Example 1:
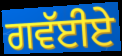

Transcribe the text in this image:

ਗਵੱਈਏ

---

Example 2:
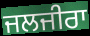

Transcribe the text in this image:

ਜਲਜੀਰਾ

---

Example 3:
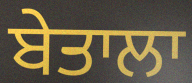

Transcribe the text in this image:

ਬੇਤਾਲਾ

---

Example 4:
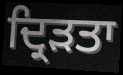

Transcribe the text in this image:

ਦ੍ਰਿੜਤਾ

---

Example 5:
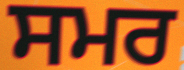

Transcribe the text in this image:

ਸਮਰ